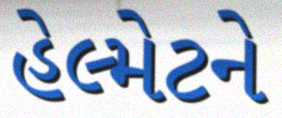
હેલ્મેટને